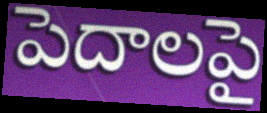
పెదాలపై